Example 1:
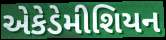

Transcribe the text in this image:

એકેડેમીશિયન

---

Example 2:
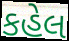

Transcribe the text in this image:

કહેલ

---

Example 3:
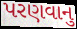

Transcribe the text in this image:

પરણવાનુ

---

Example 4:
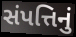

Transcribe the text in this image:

સંપત્તિનું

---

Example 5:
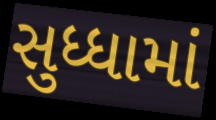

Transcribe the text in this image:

સુધ્ધામાં